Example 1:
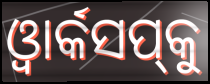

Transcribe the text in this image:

ଓ୍ୱାର୍କସପ୍‌କୁ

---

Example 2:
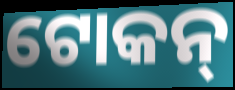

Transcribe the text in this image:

ଟୋକନ୍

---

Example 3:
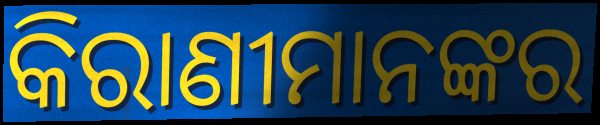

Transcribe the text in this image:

କିରାଣୀମାନଙ୍କର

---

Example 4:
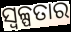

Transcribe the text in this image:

ସ୍ଵଳ୍ପତାର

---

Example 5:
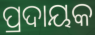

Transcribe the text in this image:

ପ୍ରଦାୟକ